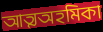
আত্মঅহমিকা